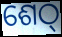
ଶେଠ୍